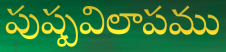
పుష్పవిలాపము